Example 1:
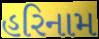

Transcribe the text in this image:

હરિનામ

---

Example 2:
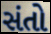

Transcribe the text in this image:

સંતો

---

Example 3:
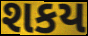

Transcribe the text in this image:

શકય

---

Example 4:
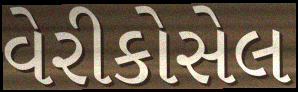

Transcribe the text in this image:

વેરીકોસેલ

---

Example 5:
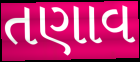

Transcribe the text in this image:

તણાવ